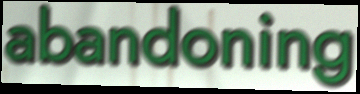
abandoning